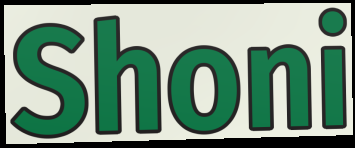
Shoni